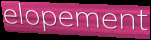
elopement